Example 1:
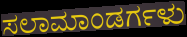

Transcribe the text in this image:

ಸಲಾಮಾಂಡರ್ಗಳು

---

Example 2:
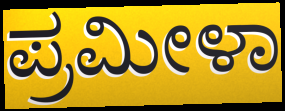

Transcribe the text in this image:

ಪ್ರಮೀಳಾ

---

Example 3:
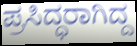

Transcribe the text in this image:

ಪ್ರಸಿದ್ಧರಾಗಿದ್ದ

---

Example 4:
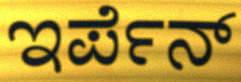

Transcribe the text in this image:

ಇರ್ಪೆನ್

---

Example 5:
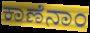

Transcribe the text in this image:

ಕಾಣೆನಾಂ